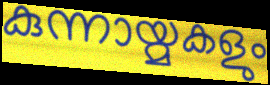
കുന്നായ്മകളും